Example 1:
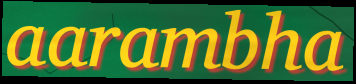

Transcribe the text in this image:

aarambha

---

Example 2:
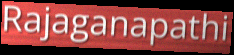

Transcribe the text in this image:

Rajaganapathi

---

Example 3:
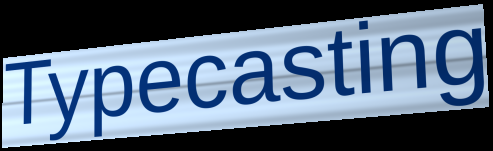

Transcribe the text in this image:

Typecasting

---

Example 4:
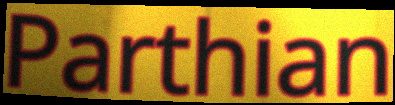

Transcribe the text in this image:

Parthian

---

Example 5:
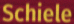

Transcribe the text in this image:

Schiele